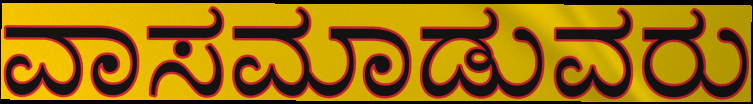
ವಾಸಮಾಡುವರು